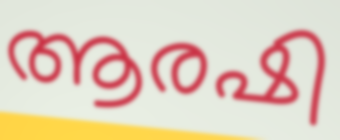
ആരഷി